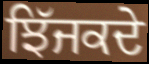
ਝਿੱਜਕਦੇ